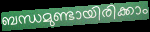
ബന്ധമുണ്ടായിരിക്കാം